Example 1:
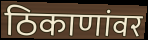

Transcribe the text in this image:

ठिकाणांवर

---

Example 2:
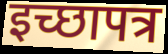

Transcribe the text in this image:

इच्छापत्र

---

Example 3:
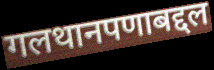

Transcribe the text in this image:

गलथानपणाबद्दल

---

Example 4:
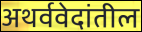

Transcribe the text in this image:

अथर्ववेदांतील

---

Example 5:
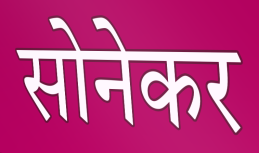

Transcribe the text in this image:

सोनेकर